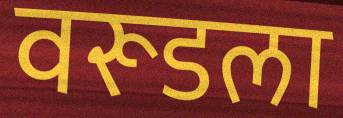
वरूडला